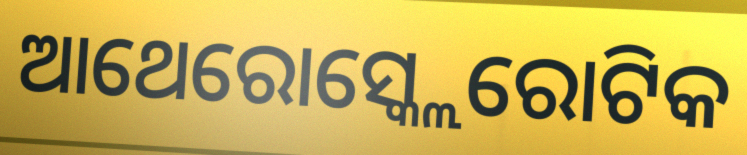
ଆଥେରୋସ୍କ୍ଲେରୋଟିକ